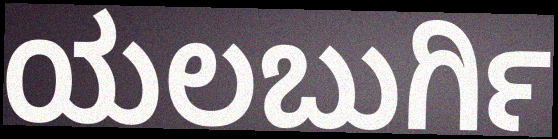
ಯಲಬುರ್ಗಿ